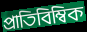
প্রাতিবিম্বিক